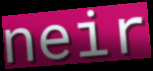
neir